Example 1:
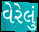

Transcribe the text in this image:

વેરેલું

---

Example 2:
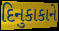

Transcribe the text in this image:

દિનુકાકાને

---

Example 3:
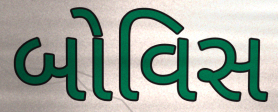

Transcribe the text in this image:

બોવિસ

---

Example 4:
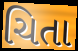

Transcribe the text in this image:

ચિતા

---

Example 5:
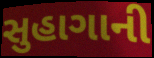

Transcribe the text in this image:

સુહાગાની